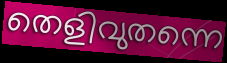
തെളിവുതന്നെ